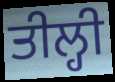
ਤੀਲ੍ਹੀ